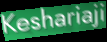
Keshariaji